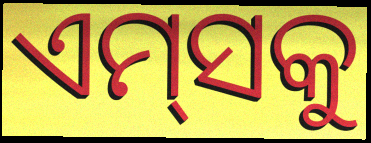
ଏମ୍‌ସକୁ